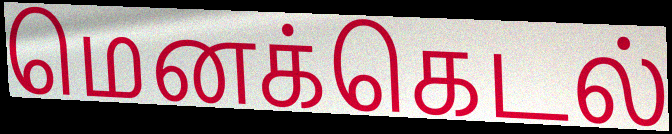
மெனக்கெடல்